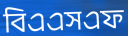
বিএএসএফ